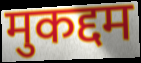
मुकद्दम